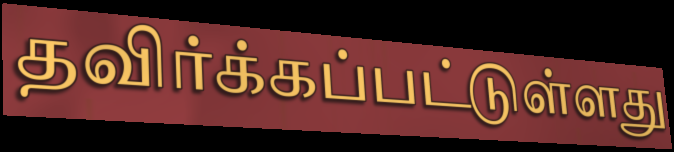
தவிர்க்கப்பட்டுள்ளது